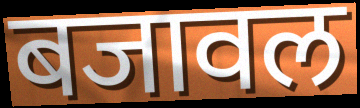
बजावल